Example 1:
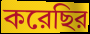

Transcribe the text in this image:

করেছির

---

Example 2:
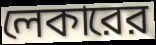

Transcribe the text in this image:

লেকারের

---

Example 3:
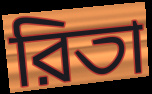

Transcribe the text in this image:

রিতা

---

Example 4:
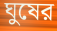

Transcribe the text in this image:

ঘুষের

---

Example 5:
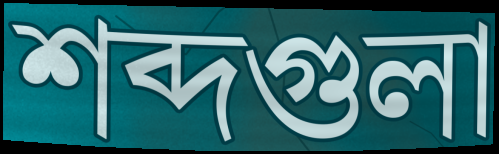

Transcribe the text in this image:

শব্দগুলা